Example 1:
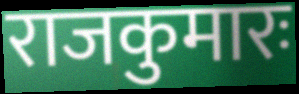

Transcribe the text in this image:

राजकुमारः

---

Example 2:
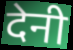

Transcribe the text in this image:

देनी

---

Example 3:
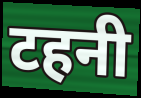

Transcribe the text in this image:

टहनी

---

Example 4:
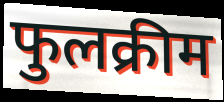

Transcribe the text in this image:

फुलक्रीम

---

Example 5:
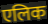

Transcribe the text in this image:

एलिक